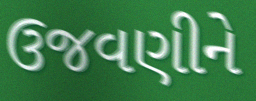
ઉજવણીને